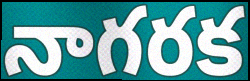
నాగరక